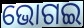
ଭୋଗଇ